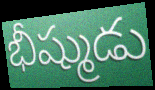
భీష్ముడు